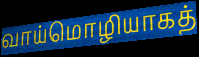
வாய்மொழியாகத்